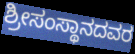
ಶ್ರೀಸಂಸ್ಥಾನದವರ